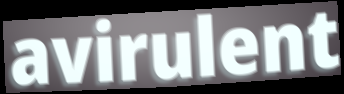
avirulent